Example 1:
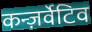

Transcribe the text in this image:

कन्ज़र्वेटिव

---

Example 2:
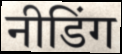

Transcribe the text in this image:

नीडिंग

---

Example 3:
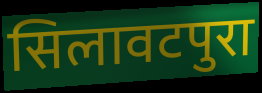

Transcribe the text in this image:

सिलावटपुरा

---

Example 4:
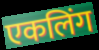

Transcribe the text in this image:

एकलिंग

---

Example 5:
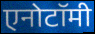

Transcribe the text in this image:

एनोटॉमी